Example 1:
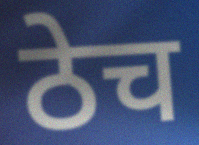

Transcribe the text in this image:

ठेच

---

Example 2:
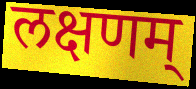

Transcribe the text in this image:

लक्षणम्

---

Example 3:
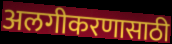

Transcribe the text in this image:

अलगीकरणासाठी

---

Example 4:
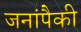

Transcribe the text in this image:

जनांपैकी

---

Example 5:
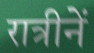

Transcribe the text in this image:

रात्रीनें